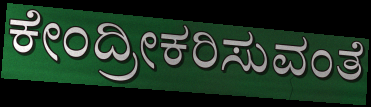
ಕೇಂದ್ರೀಕರಿಸುವಂತೆ